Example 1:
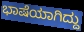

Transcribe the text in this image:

ಭಾಷೆಯಾಗಿದ್ದು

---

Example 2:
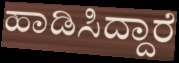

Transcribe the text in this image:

ಹಾಡಿಸಿದ್ದಾರೆ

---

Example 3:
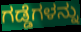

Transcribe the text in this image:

ಗಡ್ಡೆಗಳನ್ನು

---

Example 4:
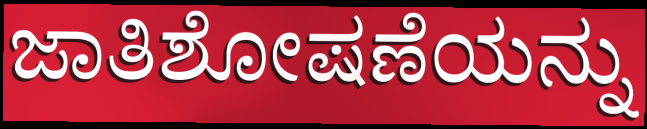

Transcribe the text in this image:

ಜಾತಿಶೋಷಣೆಯನ್ನು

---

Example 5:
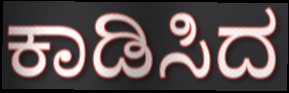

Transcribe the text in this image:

ಕಾಡಿಸಿದ